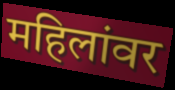
महिलांवर